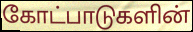
கோட்பாடுகளின்